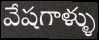
వేషగాళ్ళు